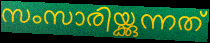
സംസാരിയ്ക്കുന്നത്